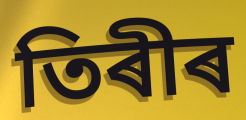
তিৰীৰ